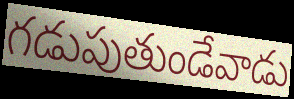
గడుపుతుండేవాడు